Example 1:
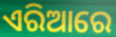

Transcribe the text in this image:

ଏରିଆରେ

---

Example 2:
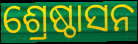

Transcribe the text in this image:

ଶ୍ରେଷ୍ଠାସନ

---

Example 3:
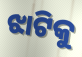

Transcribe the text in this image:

ଝାଟିକୁ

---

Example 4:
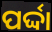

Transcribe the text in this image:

ପର୍ଦ୍ଦା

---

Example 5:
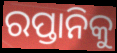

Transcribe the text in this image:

ରପ୍ତାନିକୁ